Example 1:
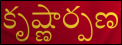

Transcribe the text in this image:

కృష్ణార్పణ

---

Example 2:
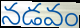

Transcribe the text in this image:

నడవం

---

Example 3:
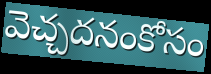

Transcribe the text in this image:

వెచ్చదనంకోసం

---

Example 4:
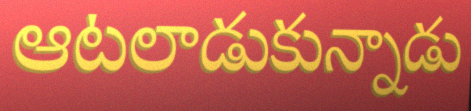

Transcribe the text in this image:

ఆటలాడుకున్నాడు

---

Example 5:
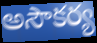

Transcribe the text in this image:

అసౌకర్య